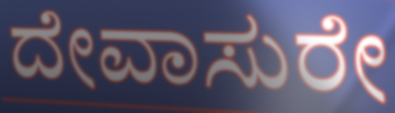
ದೇವಾಸುರೇ